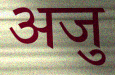
अजु